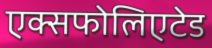
एक्सफोलिएटेड